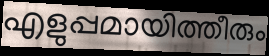
എളുപ്പമായിത്തീരും